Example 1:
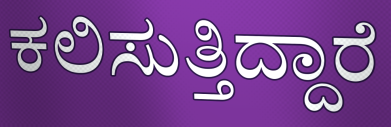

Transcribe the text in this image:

ಕಲಿಸುತ್ತಿದ್ದಾರೆ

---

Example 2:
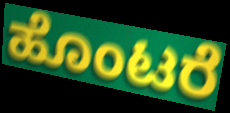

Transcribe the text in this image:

ಹೊಂಟರೆ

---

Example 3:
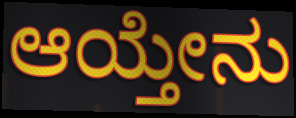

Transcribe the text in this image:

ಆಯ್ತೇನು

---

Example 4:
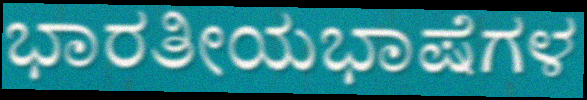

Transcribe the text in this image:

ಭಾರತೀಯಭಾಷೆಗಳ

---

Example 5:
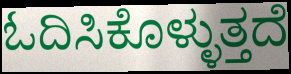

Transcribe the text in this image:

ಓದಿಸಿಕೊಳ್ಳುತ್ತದೆ